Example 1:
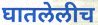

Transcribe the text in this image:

घातलेलीच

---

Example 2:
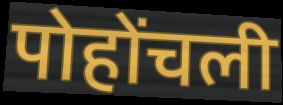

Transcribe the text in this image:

पोहोंचली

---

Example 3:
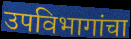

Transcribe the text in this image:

उपविभागांचा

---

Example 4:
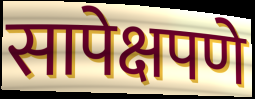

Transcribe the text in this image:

सापेक्षपणे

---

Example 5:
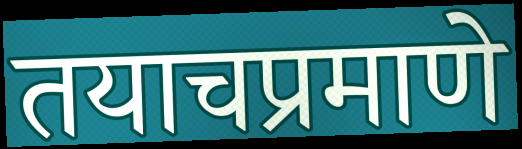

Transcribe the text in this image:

तयाचप्रमाणे